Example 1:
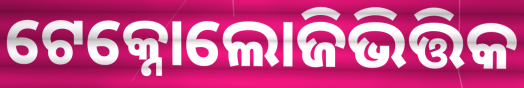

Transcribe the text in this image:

ଟେକ୍ନୋଲୋଜିଭିତ୍ତିକ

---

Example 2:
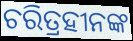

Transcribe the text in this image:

ଚରିତ୍ରହୀନଙ୍କ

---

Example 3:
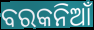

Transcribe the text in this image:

ବରକନିଆଁ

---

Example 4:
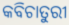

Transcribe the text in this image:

କବିଚାତୁରୀ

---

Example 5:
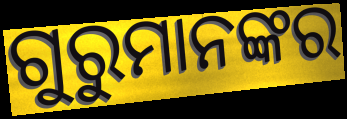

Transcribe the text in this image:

ଗୁରୁମାନଙ୍କର